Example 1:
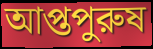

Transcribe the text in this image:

আপ্তপুরুষ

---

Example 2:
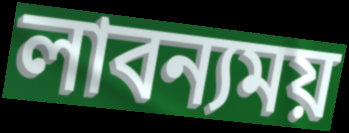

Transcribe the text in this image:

লাবন্যময়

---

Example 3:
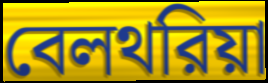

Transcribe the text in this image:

বেলথরিয়া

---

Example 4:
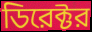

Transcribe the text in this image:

ডিরেক্টর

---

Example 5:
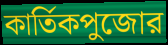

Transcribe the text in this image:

কার্তিকপুজোর